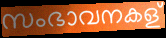
സംഭാവനകള്